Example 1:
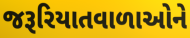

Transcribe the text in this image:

જરૂરિયાતવાળાઓને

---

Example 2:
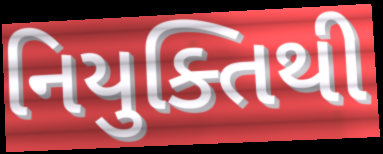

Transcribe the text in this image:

નિયુક્તિથી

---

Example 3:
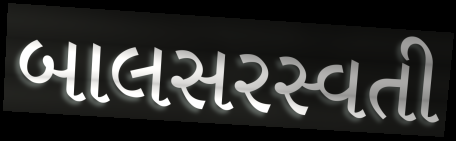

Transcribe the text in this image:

બાલસરસ્વતી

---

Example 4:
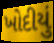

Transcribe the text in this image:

ખોદીયું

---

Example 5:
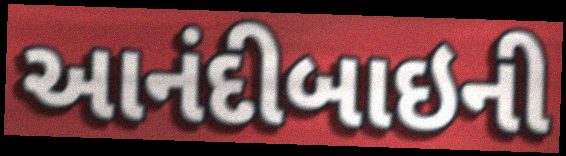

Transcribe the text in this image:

આનંદીબાઇની